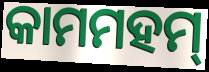
କାମମହମ୍